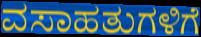
ವಸಾಹತುಗಳಿಗೆ